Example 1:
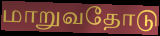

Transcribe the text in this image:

மாறுவதோடு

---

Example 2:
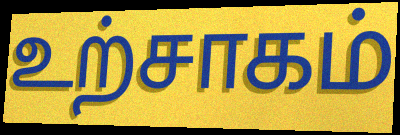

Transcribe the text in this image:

உற்சாகம்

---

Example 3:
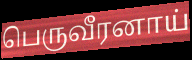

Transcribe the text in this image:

பெருவீரனாய்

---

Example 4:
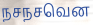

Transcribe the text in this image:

நசநசவென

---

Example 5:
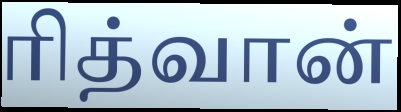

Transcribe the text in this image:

ரித்வான்